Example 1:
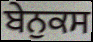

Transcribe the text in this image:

ਬੇਨੁਕਸ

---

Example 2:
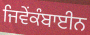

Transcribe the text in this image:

ਜਿਵੇਂਕੰਬਾਈਨ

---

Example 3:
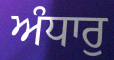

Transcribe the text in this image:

ਅੰਧਾਰੁ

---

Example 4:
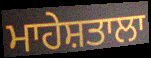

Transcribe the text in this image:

ਮਾਹੇਸ਼ਤਾਲਾ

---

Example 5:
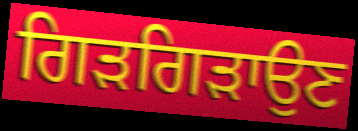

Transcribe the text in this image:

ਗਿੜਗਿੜਾਉਣ